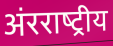
अंरराष्ट्रीय